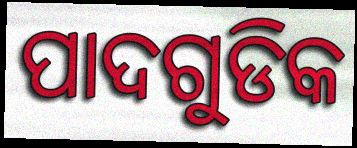
ପାଦଗୁଡିକ